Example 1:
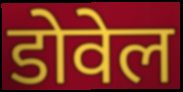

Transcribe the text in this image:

डोवेल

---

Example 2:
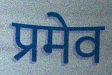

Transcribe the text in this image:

प्रमेव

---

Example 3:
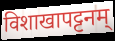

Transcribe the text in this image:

विशाखापट्टनम्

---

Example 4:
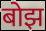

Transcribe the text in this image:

बोझ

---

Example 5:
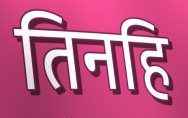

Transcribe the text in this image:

तिनहि